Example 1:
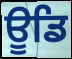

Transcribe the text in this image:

ਊਡਿ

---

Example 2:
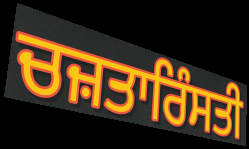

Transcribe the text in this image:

ਚਜ਼ਤਾਰਿੰਸਤੀ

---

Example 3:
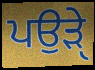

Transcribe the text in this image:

ਪਉੜੑੇ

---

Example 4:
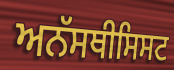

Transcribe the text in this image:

ਅਨੱਸਥੀਸਿਸਟ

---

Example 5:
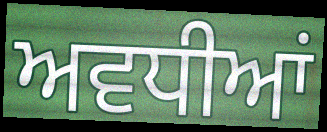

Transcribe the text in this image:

ਅਵਧੀਆਂ